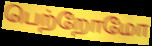
பெற்றோமோ